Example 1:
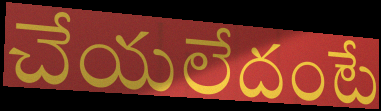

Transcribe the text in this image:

చేయలేదంటే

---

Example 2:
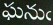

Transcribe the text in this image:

ఘనుఁ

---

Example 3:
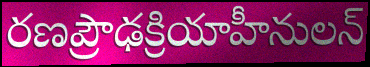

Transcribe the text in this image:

రణప్రౌఢక్రియాహీనులన్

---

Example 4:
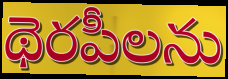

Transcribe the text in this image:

థెరపీలను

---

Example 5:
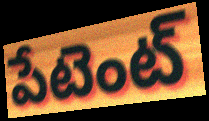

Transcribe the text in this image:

పేటెంట్